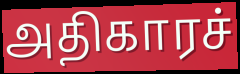
அதிகாரச்